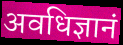
अवधिज्ञानं